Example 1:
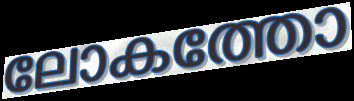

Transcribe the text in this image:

ലോകത്തോ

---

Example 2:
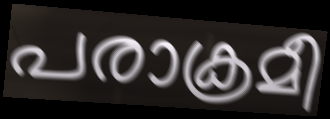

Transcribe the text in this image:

പരാക്രമീ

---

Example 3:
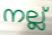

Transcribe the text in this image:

നല്ല്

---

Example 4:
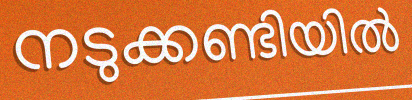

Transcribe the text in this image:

നടുക്കണ്ടിയിൽ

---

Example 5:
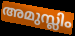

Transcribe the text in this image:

അമുസ്ലിം